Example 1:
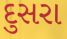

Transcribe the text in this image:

દુસરા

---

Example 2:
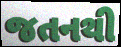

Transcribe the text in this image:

જતનથી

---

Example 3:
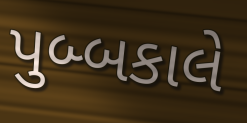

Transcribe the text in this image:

પુબ્બકાલે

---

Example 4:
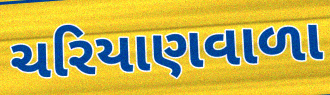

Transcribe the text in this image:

ચરિયાણવાળા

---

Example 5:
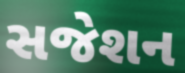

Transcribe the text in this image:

સજેશન